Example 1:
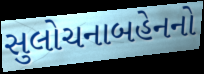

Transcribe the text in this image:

સુલોચનાબહેનનો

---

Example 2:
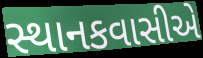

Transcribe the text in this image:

સ્થાનકવાસીએ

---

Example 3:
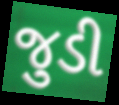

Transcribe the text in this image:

જુડી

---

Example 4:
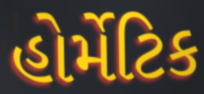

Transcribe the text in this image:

હોર્મેટિક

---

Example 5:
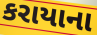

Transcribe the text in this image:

કરાયાના